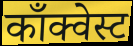
काँक्वेस्ट